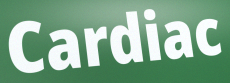
Cardiac